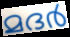
മദർ